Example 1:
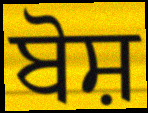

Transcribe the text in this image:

ਬੋਸ਼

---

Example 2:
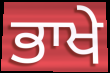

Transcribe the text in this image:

ਭਾਖੇ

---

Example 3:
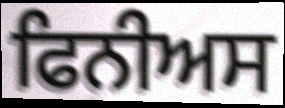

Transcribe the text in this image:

ਫਿਨੀਅਸ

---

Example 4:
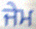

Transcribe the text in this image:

ਜੇਮ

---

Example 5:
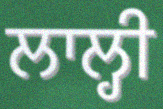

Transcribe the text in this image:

ਲਾਲ੍ਹੀ